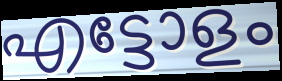
എട്ടോളം